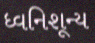
ધ્વનિશૂન્ય